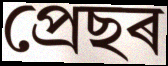
প্ৰেছৰ